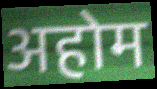
अहोम